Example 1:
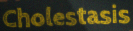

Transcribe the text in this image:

Cholestasis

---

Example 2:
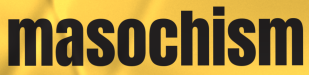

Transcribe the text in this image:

masochism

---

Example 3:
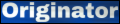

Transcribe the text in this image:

Originator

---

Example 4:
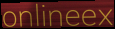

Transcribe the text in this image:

onlineex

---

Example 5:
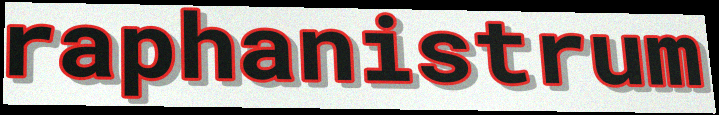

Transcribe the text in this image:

raphanistrum